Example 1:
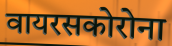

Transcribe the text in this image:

वायरसकोरोना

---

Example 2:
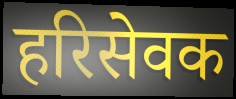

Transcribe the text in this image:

हरिसेवक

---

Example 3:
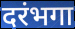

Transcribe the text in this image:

दरंभगा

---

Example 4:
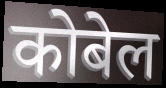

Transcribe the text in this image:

कोबेल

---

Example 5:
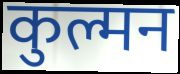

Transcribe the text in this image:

कुल्मन